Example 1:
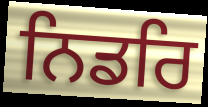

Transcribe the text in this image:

ਨਿਡਰਿ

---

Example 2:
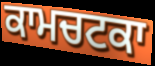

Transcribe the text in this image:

ਕਾਮਚਟਕਾ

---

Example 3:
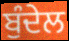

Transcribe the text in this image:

ਬੁੰਦੇਲ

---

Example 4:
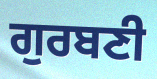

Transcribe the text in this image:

ਗੁਰਬਣੀ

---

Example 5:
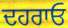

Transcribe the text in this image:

ਦਹਰਾਓ